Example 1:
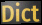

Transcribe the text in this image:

Dict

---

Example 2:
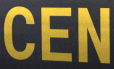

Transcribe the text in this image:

CEN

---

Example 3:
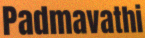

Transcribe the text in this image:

Padmavathi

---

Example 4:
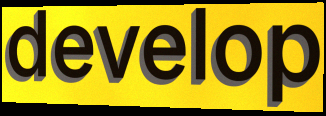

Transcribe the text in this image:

develop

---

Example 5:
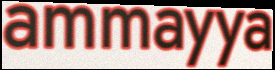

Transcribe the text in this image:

ammayya